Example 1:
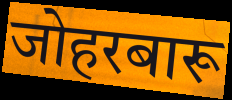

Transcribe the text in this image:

जोहरबारू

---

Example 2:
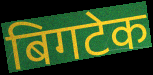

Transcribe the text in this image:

बिगटेक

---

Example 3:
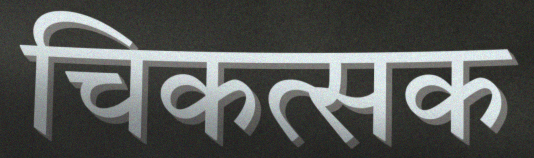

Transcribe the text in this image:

चिकत्सक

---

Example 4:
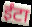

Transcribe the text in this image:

ईंटा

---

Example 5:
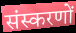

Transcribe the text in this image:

संस्करणों